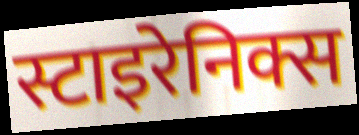
स्टाइरेनिक्स